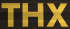
THX